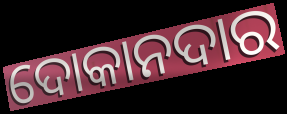
ଦୋକାନଦାର